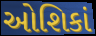
ઓશિકાં